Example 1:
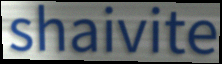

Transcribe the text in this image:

shaivite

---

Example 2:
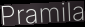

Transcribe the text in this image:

Pramila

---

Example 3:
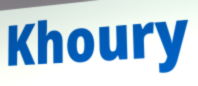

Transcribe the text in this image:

Khoury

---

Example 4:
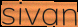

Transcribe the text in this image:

sivan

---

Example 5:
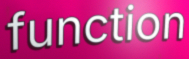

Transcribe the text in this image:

function